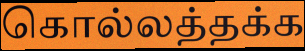
கொல்லத்தக்க